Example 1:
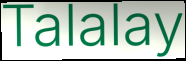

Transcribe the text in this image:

Talalay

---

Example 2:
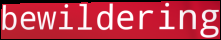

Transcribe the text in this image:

bewildering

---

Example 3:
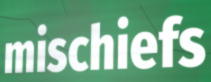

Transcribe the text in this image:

mischiefs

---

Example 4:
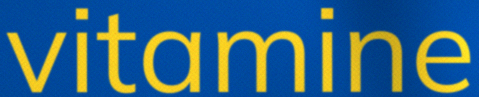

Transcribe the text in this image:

vitamine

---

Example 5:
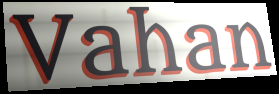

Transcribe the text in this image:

Vahan